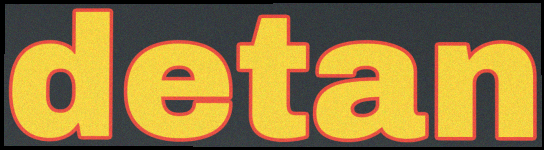
detan